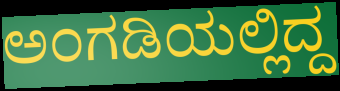
ಅಂಗಡಿಯಲ್ಲಿದ್ದ